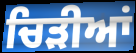
ਚਿੜੀਆਂ